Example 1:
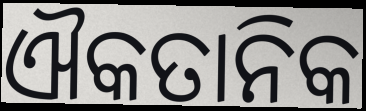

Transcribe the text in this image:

ଐକତାନିକ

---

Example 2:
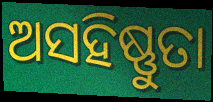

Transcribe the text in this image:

ଅସହିଷ୍ଣୁତା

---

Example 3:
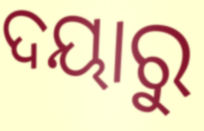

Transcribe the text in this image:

ଦୟାରୁ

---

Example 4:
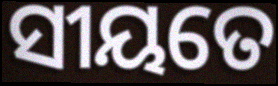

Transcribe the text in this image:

ସୀୟତେ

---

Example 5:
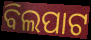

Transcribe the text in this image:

ବିଲପାଟ